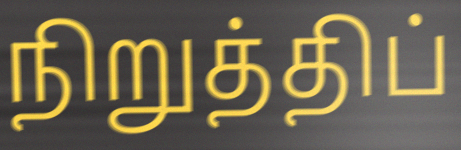
நிறுத்திப்